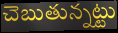
చెబుతున్నట్టు